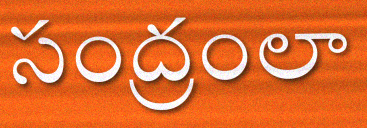
సంద్రంలా